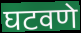
घटवणे